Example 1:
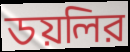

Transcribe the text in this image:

ডয়লির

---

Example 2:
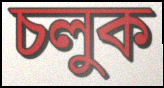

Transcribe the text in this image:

চলুক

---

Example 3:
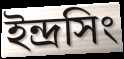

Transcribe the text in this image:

ইন্দ্রসিং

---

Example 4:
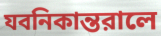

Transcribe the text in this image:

যবনিকান্তরালে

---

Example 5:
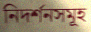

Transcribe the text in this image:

নিদর্শনসমূহ